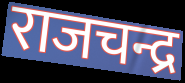
राजचन्द्र